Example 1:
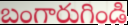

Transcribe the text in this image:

బంగారుగిండి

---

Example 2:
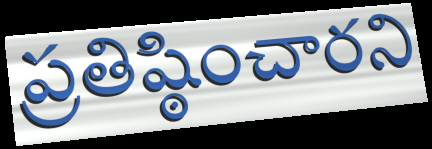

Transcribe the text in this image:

ప్రతిష్ఠించారని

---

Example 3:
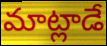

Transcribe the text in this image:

మాట్లాడే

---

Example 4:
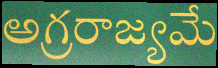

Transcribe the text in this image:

అగ్రరాజ్యమే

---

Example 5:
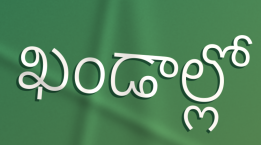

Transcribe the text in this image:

ఖండాల్లో